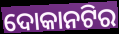
ଦୋକାନଟିର